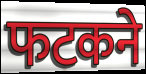
फटकने